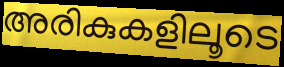
അരികുകളിലൂടെ